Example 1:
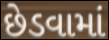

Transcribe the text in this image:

છેડવામાં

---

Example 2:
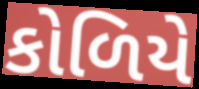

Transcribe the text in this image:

કોળિયે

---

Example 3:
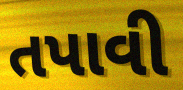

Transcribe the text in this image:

તપાવી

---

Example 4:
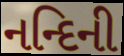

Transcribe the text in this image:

નન્દિની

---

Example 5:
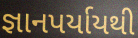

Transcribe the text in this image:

જ્ઞાનપર્યાયથી